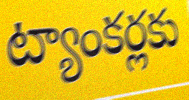
ట్యాంకర్లకు